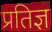
प्रतिज्ञ